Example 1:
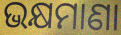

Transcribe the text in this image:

ଭକ୍ଷମାଣା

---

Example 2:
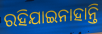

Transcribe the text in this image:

ରହିଯାଇନାହାନ୍ତି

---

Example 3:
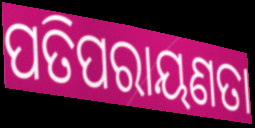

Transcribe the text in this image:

ପତିପରାୟଣତା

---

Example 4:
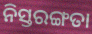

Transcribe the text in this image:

ନିସ୍ତରଙ୍ଗତା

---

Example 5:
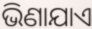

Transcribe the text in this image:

ଭିଣାଯାଏ